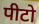
पीटो